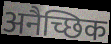
अनैच्छिक